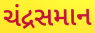
ચંદ્રસમાન